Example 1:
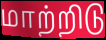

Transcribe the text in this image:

மாற்றிடு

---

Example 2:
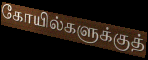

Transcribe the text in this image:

கோயில்களுக்குத்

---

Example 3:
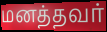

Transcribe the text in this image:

மனத்தவர்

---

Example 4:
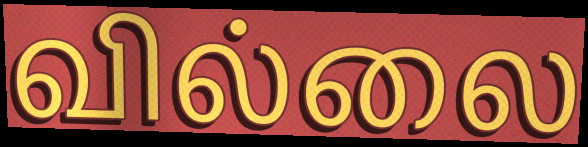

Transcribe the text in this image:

வில்லை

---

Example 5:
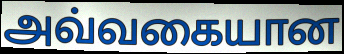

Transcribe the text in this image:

அவ்வகையான